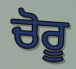
ਚੋਰੂ